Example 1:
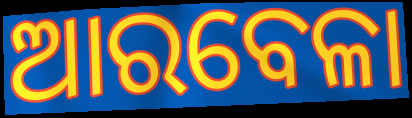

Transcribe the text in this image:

ଆରବେଳା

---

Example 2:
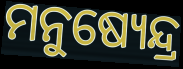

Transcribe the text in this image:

ମନୁଷ୍ୟେନ୍ଦ୍ର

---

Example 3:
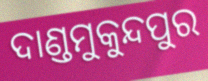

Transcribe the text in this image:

ଦାଣ୍ଡମୁକୁନ୍ଦପୁର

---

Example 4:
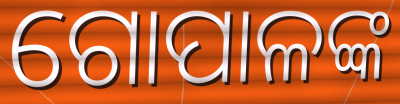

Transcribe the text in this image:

ଗୋପାଳଙ୍କ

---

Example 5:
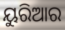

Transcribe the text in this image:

ୟୁରିଆର